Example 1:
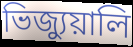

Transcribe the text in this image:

ভিজ্যুয়ালি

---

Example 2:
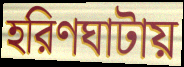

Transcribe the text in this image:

হরিণঘাটায়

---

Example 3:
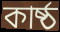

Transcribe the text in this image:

কাষ্ঠ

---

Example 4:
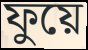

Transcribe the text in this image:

ফুয়ে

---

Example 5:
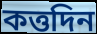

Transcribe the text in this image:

কত্তদিন